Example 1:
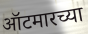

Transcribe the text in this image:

ऑटमारच्या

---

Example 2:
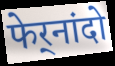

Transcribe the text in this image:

फेर्नांदो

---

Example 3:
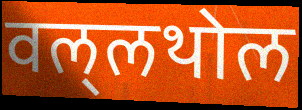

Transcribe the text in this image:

वल्लथोल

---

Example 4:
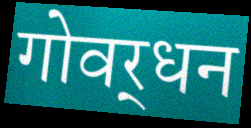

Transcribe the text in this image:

गोवर्धन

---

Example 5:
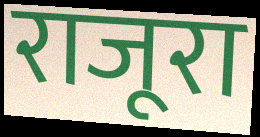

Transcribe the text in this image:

राजूरा